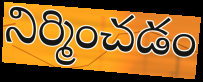
నిర్మించడం